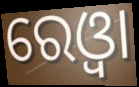
ରେଓ୍ବା